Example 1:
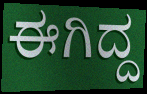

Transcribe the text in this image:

ಈಗಿದ್ದ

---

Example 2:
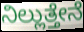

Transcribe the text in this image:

ನಿಲ್ಲುತ್ತೇನೆ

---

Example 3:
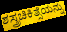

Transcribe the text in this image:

ಶಸ್ತ್ರಚಿಕಿತ್ಸೆಯನ್ನು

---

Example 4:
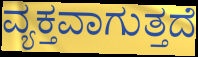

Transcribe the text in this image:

ವ್ಯಕ್ತವಾಗುತ್ತದೆ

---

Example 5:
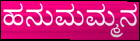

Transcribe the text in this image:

ಹನುಮಮ್ಮನ